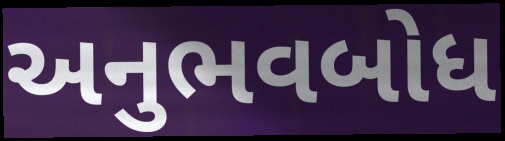
અનુભવબોધ